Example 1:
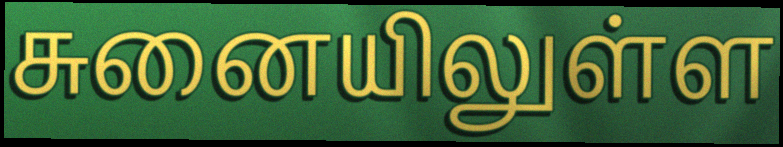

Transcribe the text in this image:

சுனையிலுள்ள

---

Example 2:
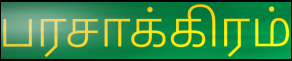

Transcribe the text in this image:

பரசாக்கிரம்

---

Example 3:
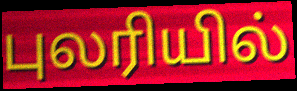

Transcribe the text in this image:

புலரியில்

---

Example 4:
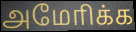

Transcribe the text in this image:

அமேரிக்க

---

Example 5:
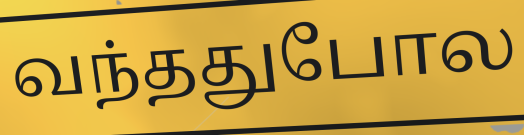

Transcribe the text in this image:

வந்ததுபோல